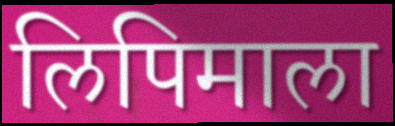
लिपिमाला